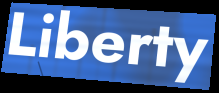
Liberty